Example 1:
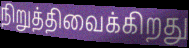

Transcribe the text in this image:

நிறுத்திவைக்கிறது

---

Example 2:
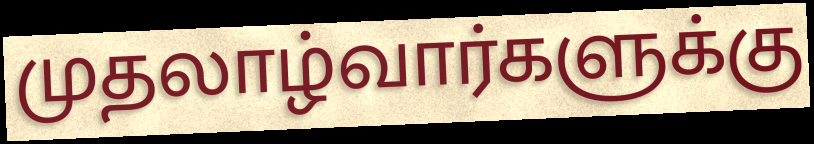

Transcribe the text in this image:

முதலாழ்வார்களுக்கு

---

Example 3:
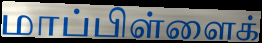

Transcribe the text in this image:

மாப்பிள்ளைக்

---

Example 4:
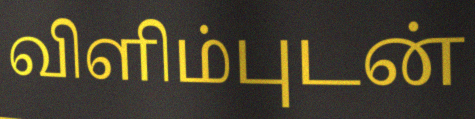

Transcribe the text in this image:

விளிம்புடன்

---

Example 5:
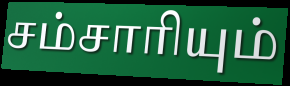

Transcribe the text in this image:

சம்சாரியும்